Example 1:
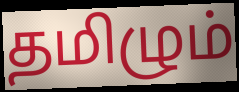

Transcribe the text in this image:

தமிழும்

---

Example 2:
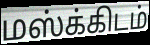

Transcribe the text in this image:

மஸ்க்கிடம்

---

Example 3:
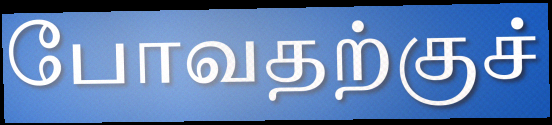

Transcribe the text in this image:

போவதற்குச்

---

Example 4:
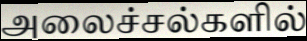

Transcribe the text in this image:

அலைச்சல்களில்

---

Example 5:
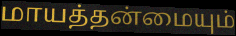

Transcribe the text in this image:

மாயத்தன்மையும்